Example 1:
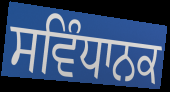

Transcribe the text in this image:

ਸਵਿੰਧਾਨਕ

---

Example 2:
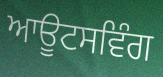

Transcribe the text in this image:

ਆਊਟਸਵਿੰਗ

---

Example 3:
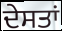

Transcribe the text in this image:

ਦੇਸਤਾਂ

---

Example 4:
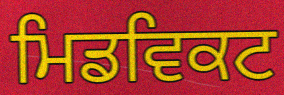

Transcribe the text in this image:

ਮਿਡਵਿਕਟ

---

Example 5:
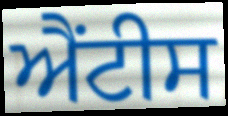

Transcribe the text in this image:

ਐਂਟੀਸ